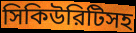
সিকিউরিটিসহ